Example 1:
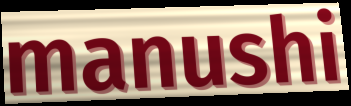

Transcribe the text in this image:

manushi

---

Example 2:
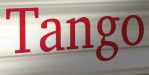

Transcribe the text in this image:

Tango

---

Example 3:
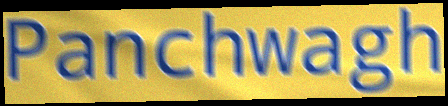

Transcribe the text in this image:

Panchwagh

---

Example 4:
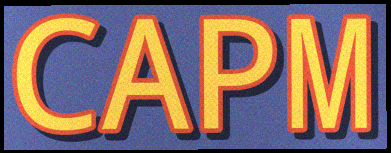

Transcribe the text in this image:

CAPM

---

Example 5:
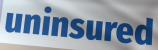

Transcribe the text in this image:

uninsured